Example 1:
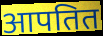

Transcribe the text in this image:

आपतित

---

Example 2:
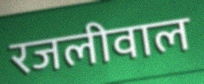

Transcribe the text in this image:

रजलीवाल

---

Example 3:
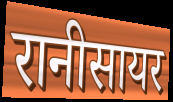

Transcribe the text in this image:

रानीसायर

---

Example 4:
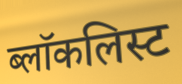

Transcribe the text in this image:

ब्लॉकलिस्ट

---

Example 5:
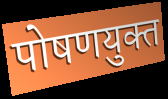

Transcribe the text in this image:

पोषणयुक्‍त